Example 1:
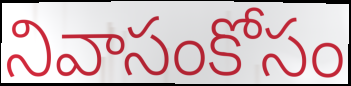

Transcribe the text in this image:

నివాసంకోసం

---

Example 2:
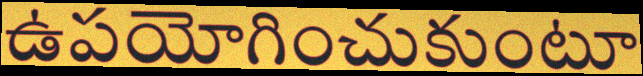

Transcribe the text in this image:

ఉపయోగించుకుంటూ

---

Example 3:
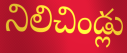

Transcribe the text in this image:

నిలిచిండ్లు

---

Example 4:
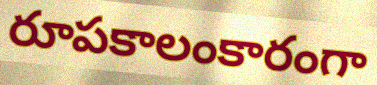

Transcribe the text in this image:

రూపకాలంకారంగా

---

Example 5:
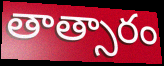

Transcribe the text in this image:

తాత్సారం